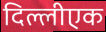
दिल्लीएक